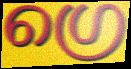
ഗ്രെ